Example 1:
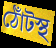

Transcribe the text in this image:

ঠোঁটস্থ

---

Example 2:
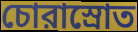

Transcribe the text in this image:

চোরাস্রোত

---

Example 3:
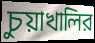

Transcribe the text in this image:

চুয়াখালির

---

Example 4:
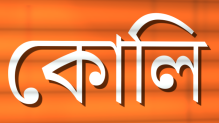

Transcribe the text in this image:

কোলি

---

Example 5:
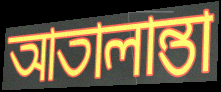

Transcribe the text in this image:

আতালান্তা